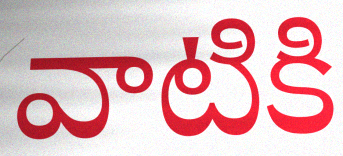
వాటికి